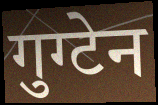
गुग्टेन